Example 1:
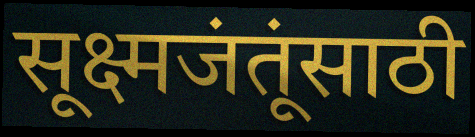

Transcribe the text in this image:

सूक्ष्मजंतूंसाठी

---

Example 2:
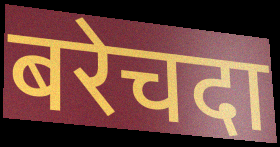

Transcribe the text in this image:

बरेचदा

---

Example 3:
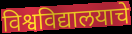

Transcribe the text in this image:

विश्वविद्यालयाचे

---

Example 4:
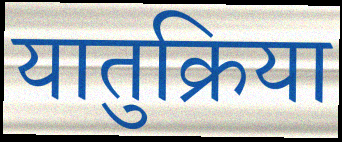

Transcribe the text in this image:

यातुक्रिया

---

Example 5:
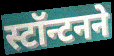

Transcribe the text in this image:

स्टॉन्टनने